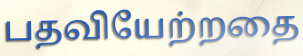
பதவியேற்றதை